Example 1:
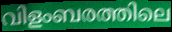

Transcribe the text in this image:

വിളംബരത്തിലെ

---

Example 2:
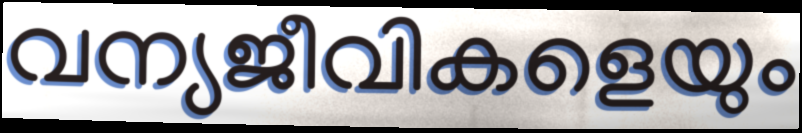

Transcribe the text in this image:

വന്യജീവികളെയും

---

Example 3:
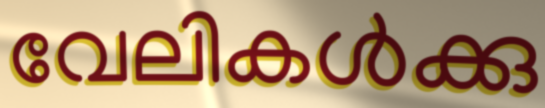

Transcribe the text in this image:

വേലികൾക്കു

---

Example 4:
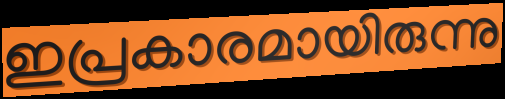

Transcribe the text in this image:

ഇപ്രകാരമായിരുന്നു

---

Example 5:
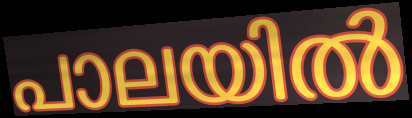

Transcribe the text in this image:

പാലയിൽ